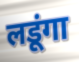
लडूंगा